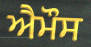
ਐਮੌਸ